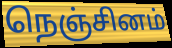
நெஞ்சினம்